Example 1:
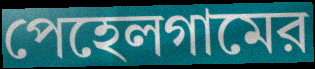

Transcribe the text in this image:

পেহেলগামের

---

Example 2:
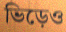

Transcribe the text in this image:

ভিড়েও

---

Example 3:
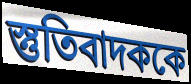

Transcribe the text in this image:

স্তুতিবাদককে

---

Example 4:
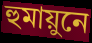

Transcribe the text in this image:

হুমায়ুনে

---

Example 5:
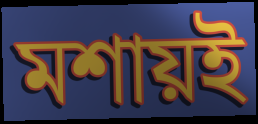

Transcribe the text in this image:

মশায়ই